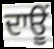
ਦਾਊਂ